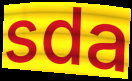
sda